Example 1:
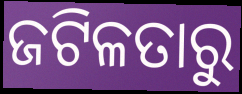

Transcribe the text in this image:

ଜଟିଳତାରୁ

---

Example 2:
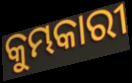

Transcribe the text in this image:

କୁମ୍ଭକାରୀ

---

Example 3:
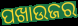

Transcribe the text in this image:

ପଖାଉଜର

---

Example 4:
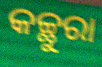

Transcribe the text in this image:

କଚ୍ଛୁରା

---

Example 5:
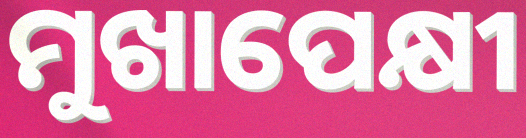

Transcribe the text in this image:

ମୁଖାପେକ୍ଷୀ